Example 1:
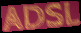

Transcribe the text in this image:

ADSL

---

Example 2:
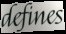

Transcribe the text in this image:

defines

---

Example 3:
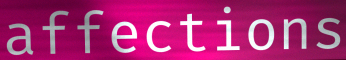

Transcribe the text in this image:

affections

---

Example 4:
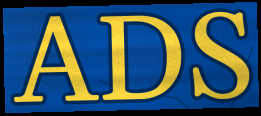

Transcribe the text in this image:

ADS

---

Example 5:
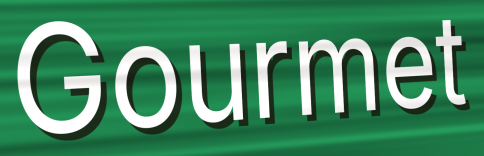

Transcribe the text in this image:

Gourmet